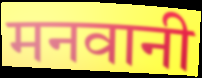
मनवानी